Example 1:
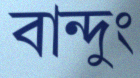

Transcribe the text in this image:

বান্দুং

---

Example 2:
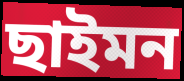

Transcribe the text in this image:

ছাইমন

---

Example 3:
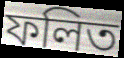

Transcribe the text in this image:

ফলিত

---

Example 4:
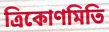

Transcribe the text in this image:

ত্ৰিকোণমিতি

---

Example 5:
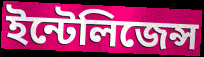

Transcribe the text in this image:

ইন্টেলিজেন্স